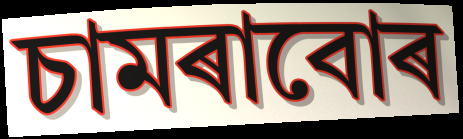
চামৰাবোৰ